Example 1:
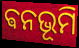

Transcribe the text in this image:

ଵନଭୂମି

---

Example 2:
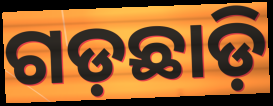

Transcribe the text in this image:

ଗଡ଼ଛାଡ଼ି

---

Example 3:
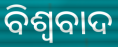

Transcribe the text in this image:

ବିଶ୍ୱବାଦ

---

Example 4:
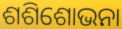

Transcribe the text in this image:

ଶଶିଶୋଭନା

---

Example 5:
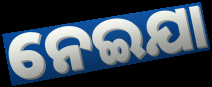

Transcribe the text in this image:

ନେଇଯା